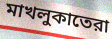
মাখলুকাতেরা